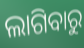
ଲାଗିବାରୁ